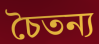
চৈতন্য